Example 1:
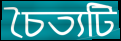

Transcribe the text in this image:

চৈত্যটি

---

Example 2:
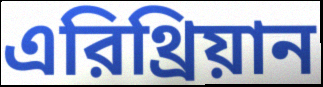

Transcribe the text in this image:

এরিথ্রিয়ান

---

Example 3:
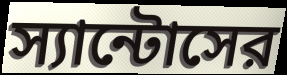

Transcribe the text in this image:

স্যান্টোসের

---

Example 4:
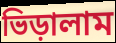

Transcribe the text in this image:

ভিড়ালাম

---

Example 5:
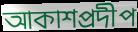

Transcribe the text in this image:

আকাশপ্রদীপ